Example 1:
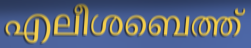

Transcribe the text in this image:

എലീശബെത്ത്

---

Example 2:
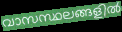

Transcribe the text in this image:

വാസസ്ഥലങ്ങളിൽ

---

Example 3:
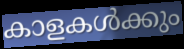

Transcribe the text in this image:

കാളകൾക്കും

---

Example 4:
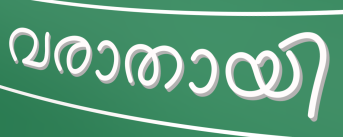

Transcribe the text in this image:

വരാതായി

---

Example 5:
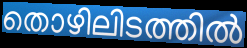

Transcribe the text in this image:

തൊഴിലിടത്തിൽ